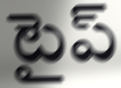
టైప్